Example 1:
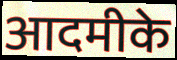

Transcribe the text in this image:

आदमीके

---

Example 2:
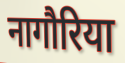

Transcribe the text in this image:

नागौरिया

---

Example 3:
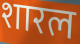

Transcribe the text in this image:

शारल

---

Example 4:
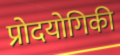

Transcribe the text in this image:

प्रोदयोगिकी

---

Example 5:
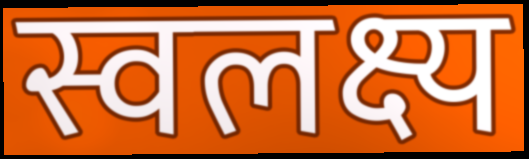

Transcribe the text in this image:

स्वलक्ष्य